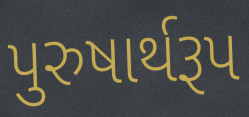
પુરુષાર્થરૂપ